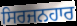
ਸਿਰਜਨਹਾਰ